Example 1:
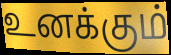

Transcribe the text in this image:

உனக்கும்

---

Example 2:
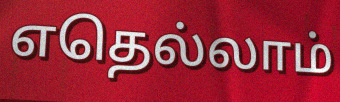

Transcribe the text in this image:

எதெல்லாம்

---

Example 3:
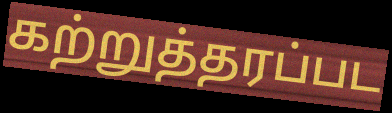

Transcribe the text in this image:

கற்றுத்தரப்பட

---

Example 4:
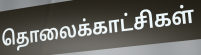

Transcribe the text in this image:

தொலைக்காட்சிகள்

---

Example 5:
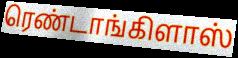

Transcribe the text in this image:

ரெண்டாங்கிளாஸ்